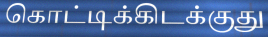
கொட்டிக்கிடக்குது